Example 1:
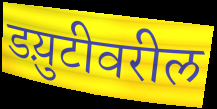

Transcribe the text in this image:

डय़ुटीवरील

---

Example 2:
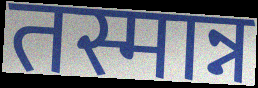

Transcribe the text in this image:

तस्मान्न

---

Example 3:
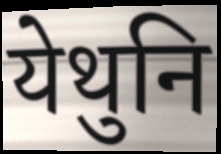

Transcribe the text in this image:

येथुनि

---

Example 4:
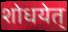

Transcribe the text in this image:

शोधयेत्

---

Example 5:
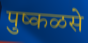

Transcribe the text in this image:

पुष्कळसे